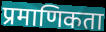
प्रमाणिकता